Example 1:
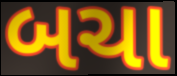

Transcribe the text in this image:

બચા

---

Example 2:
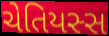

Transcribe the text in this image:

ચેતિયસ્સ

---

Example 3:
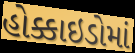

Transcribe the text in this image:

હોક્કાઇડોમાં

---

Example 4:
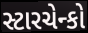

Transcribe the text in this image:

સ્ટારચેન્કો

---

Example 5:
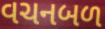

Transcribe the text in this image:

વચનબળ